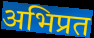
अभिप्रत